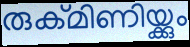
രുക്മിണിയ്ക്കും